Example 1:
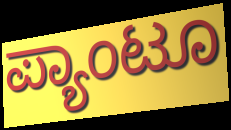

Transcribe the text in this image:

ಪ್ಯಾಂಟೂ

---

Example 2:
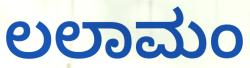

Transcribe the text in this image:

ಲಲಾಮಂ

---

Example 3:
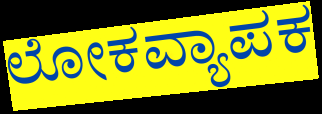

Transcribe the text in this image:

ಲೋಕವ್ಯಾಪಕ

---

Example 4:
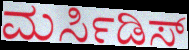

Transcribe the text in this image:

ಮರ್ಸಿಡಿಸ್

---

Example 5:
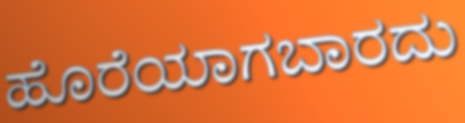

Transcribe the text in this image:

ಹೊರೆಯಾಗಬಾರದು